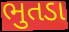
ભુતડા